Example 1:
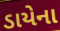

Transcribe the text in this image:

ડાયેના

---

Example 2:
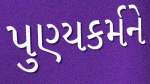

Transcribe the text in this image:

પુણ્યકર્મને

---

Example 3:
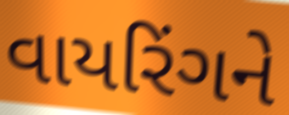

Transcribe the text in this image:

વાયરિંગને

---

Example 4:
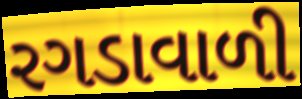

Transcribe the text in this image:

રગડાવાળી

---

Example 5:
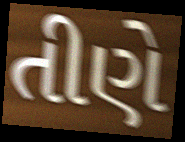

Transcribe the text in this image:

તીણે